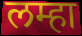
लम्हा